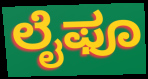
ಲೈಫೂ